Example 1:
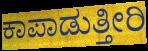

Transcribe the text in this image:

ಕಾಪಾಡುತ್ತೀರಿ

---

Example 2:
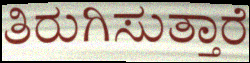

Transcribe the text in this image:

ತಿರುಗಿಸುತ್ತಾರೆ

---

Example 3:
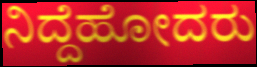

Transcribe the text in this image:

ನಿದ್ದೆಹೋದರು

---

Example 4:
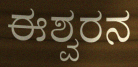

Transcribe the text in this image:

ಈಶ್ವರನ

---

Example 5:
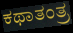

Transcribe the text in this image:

ಕಥಾತಂತ್ರ